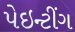
પેઇન્ટીંગ